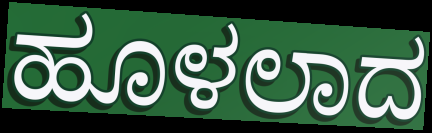
ಹೂಳಲಾದ